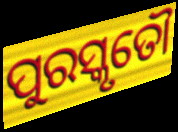
ପୁରସ୍କୃତୌ